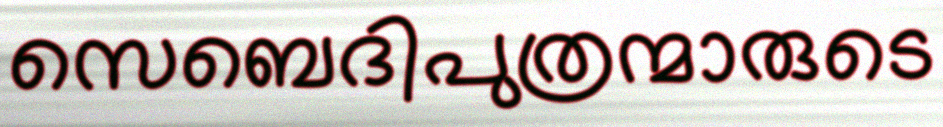
സെബെദിപുത്രന്മാരുടെ